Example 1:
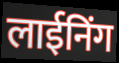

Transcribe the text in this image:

लाईनिंग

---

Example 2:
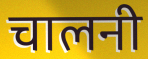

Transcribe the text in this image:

चालनी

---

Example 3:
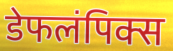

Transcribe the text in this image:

डेफलंपिक्स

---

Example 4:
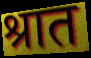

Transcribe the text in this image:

श्रात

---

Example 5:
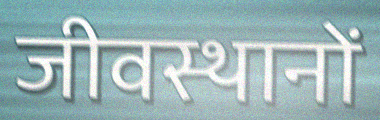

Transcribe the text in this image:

जीवस्थानों